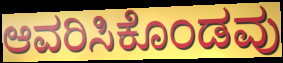
ಆವರಿಸಿಕೊಂಡವು